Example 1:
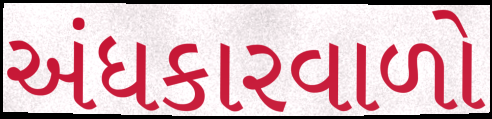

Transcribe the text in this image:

અંધકારવાળો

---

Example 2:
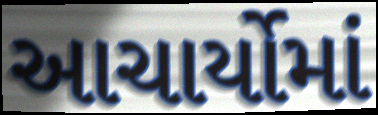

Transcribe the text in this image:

આચાર્યોમાં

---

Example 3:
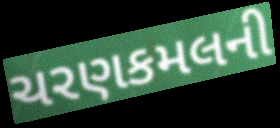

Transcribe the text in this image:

ચરણકમલની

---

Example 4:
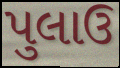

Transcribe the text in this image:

પુલાઉ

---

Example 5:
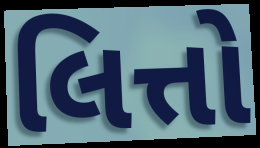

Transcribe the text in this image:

લિત્તો